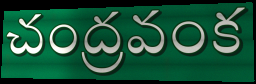
చంద్రవంక